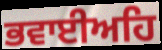
ਭਵਾਈਅਹਿ